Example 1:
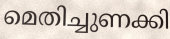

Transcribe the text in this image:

മെതിച്ചുണക്കി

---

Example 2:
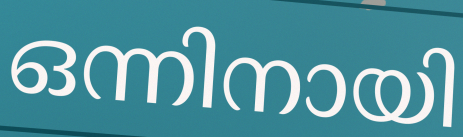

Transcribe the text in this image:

ഒന്നിനായി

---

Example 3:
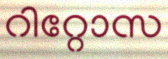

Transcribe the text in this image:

റിറ്റോസ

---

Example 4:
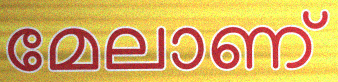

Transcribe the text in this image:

മേലാണ്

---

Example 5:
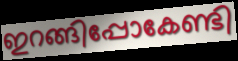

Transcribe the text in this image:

ഇറങ്ങിപ്പോകേണ്ടി